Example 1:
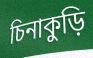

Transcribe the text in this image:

চিনাকুড়ি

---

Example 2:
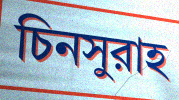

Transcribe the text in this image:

চিনসুরাহ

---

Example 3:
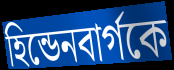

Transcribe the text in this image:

হিন্ডেনবার্গকে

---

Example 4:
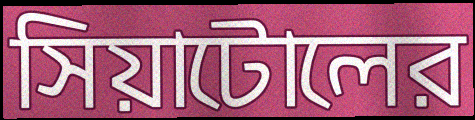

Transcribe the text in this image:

সিয়াটোলের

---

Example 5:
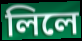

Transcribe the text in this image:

লিলে